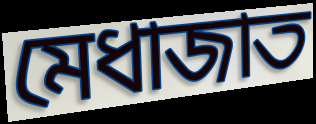
মেধাজাত